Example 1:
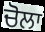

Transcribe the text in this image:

ਚੋਲਾ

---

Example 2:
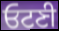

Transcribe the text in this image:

ਓਟਣੀ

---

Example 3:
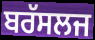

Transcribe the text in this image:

ਬਰੱਸਲਜ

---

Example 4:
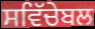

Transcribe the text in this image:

ਸਵਿੱਚੇਬਲ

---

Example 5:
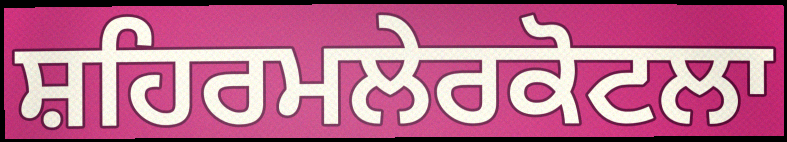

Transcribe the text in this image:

ਸ਼ਹਿਰਮਲੇਰਕੋਟਲਾ